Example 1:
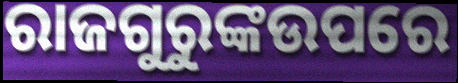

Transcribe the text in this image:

ରାଜଗୁରୁଙ୍କଉପରେ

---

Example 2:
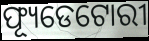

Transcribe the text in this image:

ଫ୍ୟୂଡେଟୋରୀ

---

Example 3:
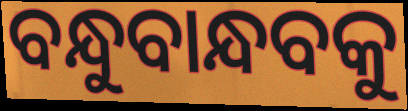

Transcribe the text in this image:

ବନ୍ଧୁବାନ୍ଧବକୁ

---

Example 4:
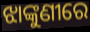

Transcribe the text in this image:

ଝାଙ୍କୁଣୀରେ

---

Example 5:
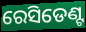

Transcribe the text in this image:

ରେସିଡେଣ୍ଟ